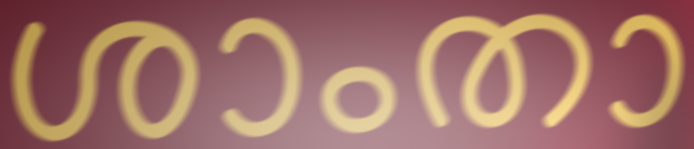
ശാംതാ